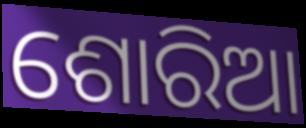
ଶୋରିଆ